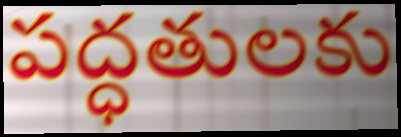
పద్ధతులకు